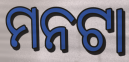
ମନଟା